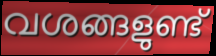
വശങ്ങളുണ്ട്